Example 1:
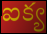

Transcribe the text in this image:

ఐక్య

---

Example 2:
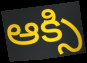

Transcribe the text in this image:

ఆక్సి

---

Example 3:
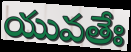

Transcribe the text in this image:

యువతేః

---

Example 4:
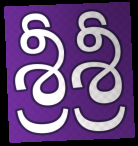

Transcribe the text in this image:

శ్రీశ్రీ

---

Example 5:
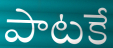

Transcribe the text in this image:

పాటకే